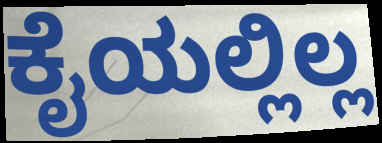
ಕೈಯಲ್ಲಿಲ್ಲ